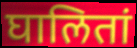
घालितां